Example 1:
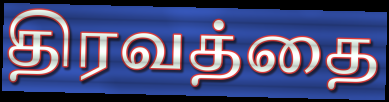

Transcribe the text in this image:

திரவத்தை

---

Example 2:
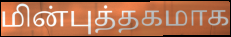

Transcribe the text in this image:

மின்புத்தகமாக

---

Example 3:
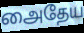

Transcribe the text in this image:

அைதேய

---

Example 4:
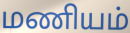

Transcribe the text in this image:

மணியம்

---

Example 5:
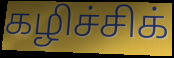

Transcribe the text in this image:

கழிச்சிக்